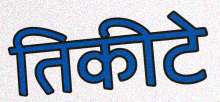
तिकीटे